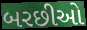
બરછીઓ